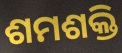
ଶମଶକ୍ତି